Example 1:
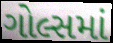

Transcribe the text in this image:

ગોલ્સમાં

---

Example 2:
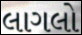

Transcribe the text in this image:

લાગલો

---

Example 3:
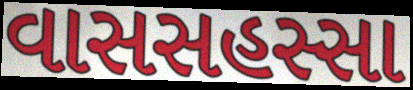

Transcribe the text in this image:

વાસસહસ્સા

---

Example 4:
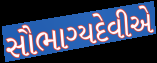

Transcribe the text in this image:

સૌભાગ્યદેવીએ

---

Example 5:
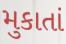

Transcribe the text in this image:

મુકાતાં